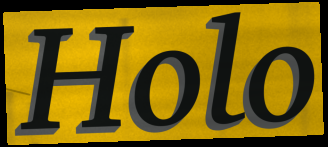
Holo